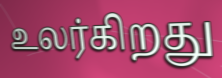
உலர்கிறது